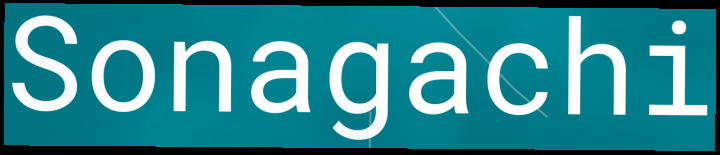
Sonagachi